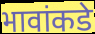
भावांकडे